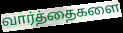
வார்த்தைகளை